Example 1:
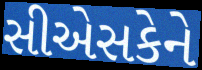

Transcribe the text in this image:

સીએસકેને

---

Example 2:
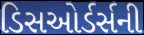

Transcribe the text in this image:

ડિસઓર્ડર્સની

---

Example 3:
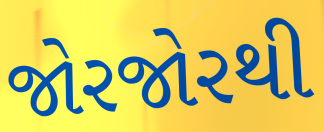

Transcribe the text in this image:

જોરજોરથી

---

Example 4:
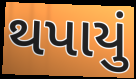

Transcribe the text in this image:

થપાયું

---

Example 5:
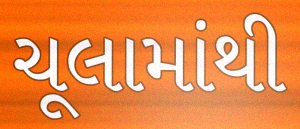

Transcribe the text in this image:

ચૂલામાંથી